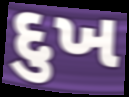
દુખ